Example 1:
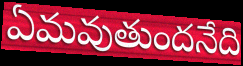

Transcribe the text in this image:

ఏమవుతుందనేది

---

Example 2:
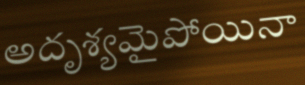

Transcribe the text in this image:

అదృశ్యమైపోయినా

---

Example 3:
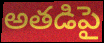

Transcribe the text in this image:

అతడిపై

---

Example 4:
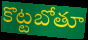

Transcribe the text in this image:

కొట్టబోతూ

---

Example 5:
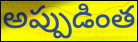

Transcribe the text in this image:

అప్పుడింత